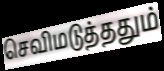
செவிமடுத்ததும்